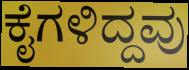
ಕೈಗಳಿದ್ದವು